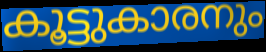
കൂട്ടുകാരനും